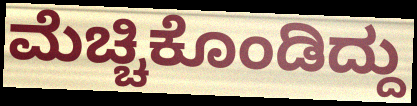
ಮೆಚ್ಚಿಕೊಂಡಿದ್ದು